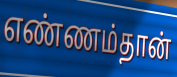
எண்ணம்தான்